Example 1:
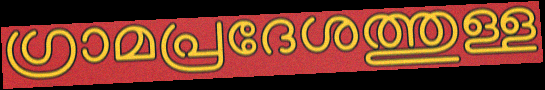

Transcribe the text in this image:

ഗ്രാമപ്രദേശത്തുള്ള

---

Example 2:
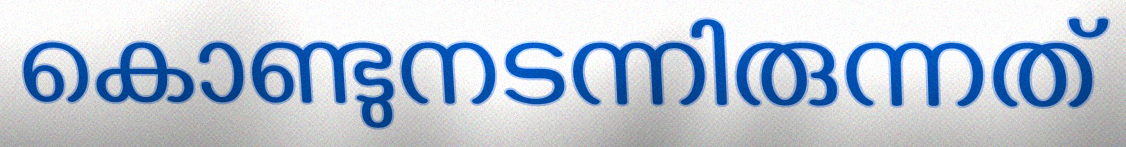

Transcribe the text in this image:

കൊണ്ടുനടന്നിരുന്നത്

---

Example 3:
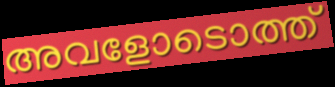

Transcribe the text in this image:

അവളോടൊത്ത്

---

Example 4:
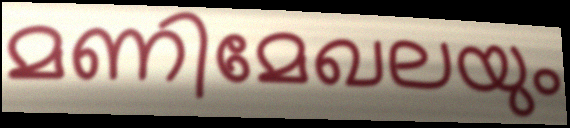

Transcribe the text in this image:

മണിമേഖലയും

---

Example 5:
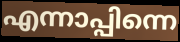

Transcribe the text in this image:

എന്നാപ്പിന്നെ